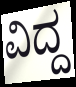
ವಿದ್ದ